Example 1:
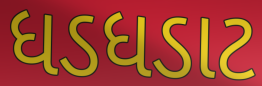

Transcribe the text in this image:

ધડધડાટ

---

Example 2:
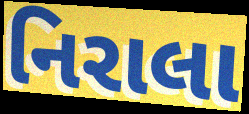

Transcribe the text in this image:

નિરાલા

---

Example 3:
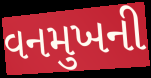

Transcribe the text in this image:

વનમુખની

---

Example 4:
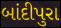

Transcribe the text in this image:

બાંદીપુરા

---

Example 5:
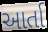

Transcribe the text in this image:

આર્તા